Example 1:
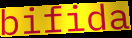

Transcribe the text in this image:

bifida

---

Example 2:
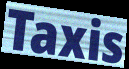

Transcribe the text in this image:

Taxis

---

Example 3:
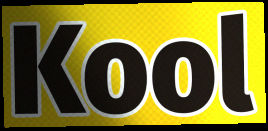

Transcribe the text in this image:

Kool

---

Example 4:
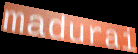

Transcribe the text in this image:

madurai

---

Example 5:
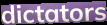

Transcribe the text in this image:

dictators